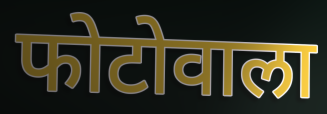
फोटोवाला